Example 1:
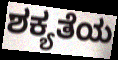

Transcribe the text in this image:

ಶಕ್ಯತೆಯ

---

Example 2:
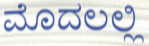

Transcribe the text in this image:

ಮೊದಲಲ್ಲಿ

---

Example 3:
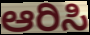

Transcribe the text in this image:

ಆರಿಸಿ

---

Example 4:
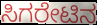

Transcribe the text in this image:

ಸಿಗರೇಟಿನ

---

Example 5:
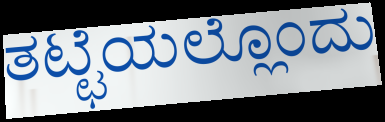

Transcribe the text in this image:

ತಟ್ಟೆಯಲ್ಲೊಂದು